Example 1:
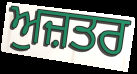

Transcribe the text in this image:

ਅੁਜ਼ਤਰ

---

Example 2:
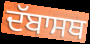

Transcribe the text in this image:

ਦੱਬਾਸਥ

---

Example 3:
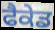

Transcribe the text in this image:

ਫੈਕੇਡ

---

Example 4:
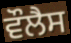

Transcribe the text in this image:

ਵੌਲੈਸ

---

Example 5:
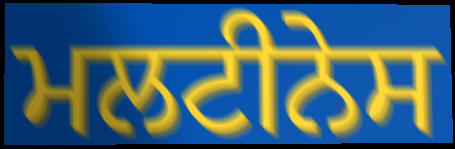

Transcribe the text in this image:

ਮਲਟੀਨੇਸ